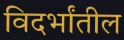
विदर्भांतील